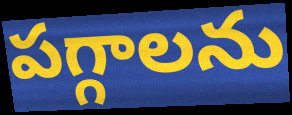
పగ్గాలను